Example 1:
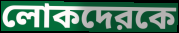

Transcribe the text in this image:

লোকদেরকে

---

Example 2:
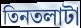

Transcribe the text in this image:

তিনতলাটা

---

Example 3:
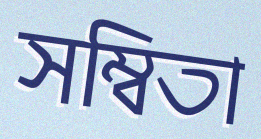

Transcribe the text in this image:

সম্বিতা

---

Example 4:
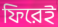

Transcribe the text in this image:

ফিরেই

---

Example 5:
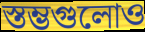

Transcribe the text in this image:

স্তম্ভগুলোও